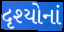
દૃશ્યોનાં